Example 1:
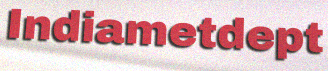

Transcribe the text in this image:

Indiametdept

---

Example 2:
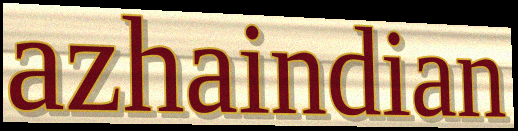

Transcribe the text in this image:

azhaindian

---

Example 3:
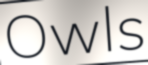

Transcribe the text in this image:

Owls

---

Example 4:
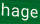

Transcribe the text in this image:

hage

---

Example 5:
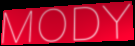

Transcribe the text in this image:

MODY